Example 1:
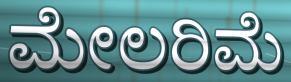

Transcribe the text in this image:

ಮೇಲರಿಮೆ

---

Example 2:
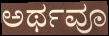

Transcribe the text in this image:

ಅರ್ಥವೂ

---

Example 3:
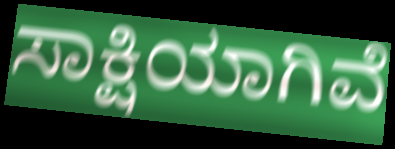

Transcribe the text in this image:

ಸಾಕ್ಷಿಯಾಗಿವೆ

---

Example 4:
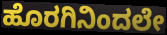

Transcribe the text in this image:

ಹೊರಗಿನಿಂದಲೇ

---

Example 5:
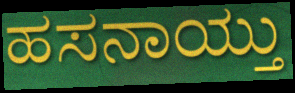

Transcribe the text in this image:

ಹಸನಾಯ್ತು